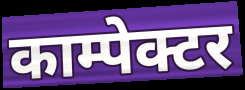
काम्पेक्टर